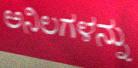
ಅನಿಲಗಳನ್ನು